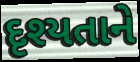
દૃશ્યતાને